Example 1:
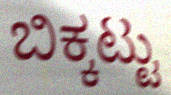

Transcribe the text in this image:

ಬಿಕ್ಕಟ್ಟು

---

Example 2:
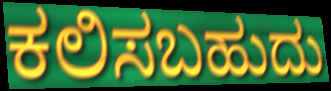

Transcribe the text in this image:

ಕಲಿಸಬಹುದು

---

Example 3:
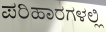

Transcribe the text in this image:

ಪರಿಹಾರಗಳಲ್ಲಿ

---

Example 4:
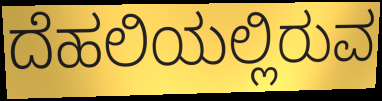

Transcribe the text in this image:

ದೆಹಲಿಯಲ್ಲಿರುವ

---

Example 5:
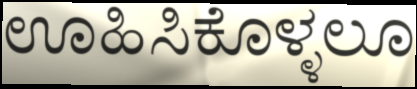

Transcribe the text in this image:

ಊಹಿಸಿಕೊಳ್ಳಲೂ